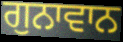
ਗੁਨਾਵਾਨ